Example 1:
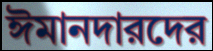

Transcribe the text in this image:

ঈমানদারদের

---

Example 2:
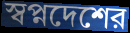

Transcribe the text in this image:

স্বপ্নদেশের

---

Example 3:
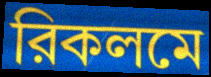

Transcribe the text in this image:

রিকলমে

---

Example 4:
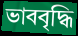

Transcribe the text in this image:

ভাববৃদ্ধি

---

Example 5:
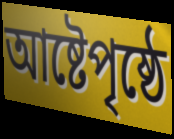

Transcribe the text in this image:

আষ্টেপৃষ্ঠে